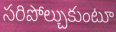
సరిపోల్చుకుంటూ